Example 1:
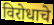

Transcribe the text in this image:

विरोधाचे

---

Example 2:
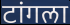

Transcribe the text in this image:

टांगला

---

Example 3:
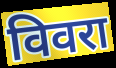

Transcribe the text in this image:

विवरा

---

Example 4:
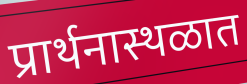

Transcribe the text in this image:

प्रार्थनास्थळात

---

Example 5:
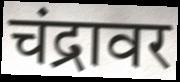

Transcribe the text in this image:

चंद्रावर